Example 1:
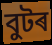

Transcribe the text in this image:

বুটৰ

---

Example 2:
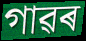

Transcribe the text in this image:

গাৱৰ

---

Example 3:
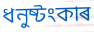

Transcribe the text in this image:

ধনুষ্টংকাৰ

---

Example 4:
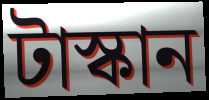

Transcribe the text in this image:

টাস্কান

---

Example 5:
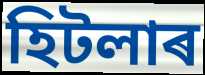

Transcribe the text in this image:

হিটলাৰ